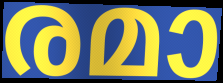
രമാ